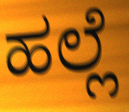
ಹಲ್ಲೆ